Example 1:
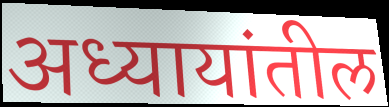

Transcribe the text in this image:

अध्यायांतील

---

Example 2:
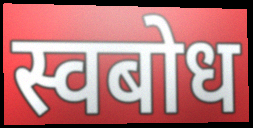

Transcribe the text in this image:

स्वबोध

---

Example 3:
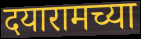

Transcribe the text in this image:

दयारामच्या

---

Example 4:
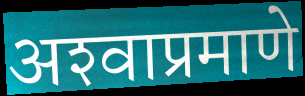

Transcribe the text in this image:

अश्वाप्रमाणे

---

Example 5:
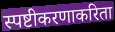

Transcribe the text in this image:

स्पष्टीकरणाकरिता